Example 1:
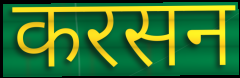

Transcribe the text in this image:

करसन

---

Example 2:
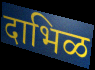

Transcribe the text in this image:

दाभिळ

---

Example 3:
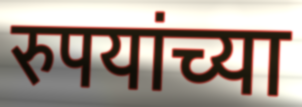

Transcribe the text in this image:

रुपयांच्या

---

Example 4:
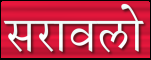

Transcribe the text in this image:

सरावलो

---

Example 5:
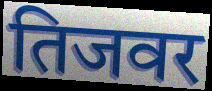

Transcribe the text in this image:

तिजवर